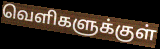
வெளிகளுக்குள்